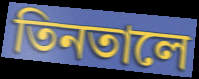
তিনতালে